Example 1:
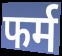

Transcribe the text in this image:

फर्म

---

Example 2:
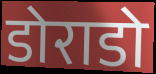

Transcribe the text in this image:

डोराडो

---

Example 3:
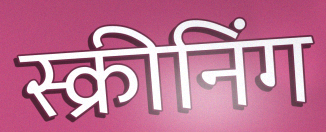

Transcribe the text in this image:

स्क्रीनिंग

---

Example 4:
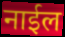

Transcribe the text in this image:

नाईल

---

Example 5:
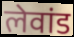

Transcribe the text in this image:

लेवांड